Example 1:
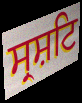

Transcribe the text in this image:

ਸ੍ਰਸ਼ਟਿ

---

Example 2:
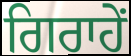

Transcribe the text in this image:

ਗਿਰਾਹੇਂ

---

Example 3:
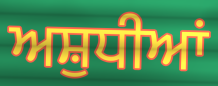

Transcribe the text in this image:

ਅਸ਼ੁਧੀਆਂ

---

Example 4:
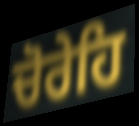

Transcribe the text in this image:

ਚੋਰੇਹਿ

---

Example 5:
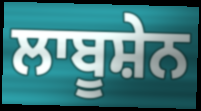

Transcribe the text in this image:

ਲਾਬੂਸ਼ੇਨ